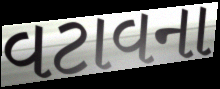
વટાવના